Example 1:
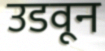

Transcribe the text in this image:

उडवून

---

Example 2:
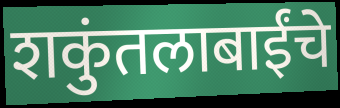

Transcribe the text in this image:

शकुंतलाबाईंचे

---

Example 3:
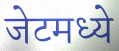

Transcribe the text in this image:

जेटमध्ये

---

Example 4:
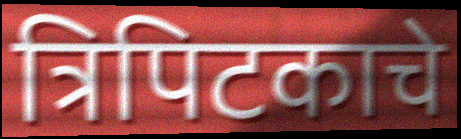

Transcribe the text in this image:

त्रिपिटकाचे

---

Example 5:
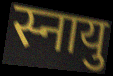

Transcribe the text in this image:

स्नायु